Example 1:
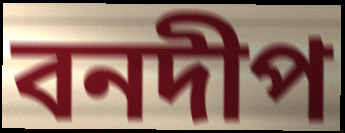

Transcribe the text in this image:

বনদীপ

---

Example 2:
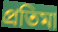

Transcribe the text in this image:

প্ৰতিমা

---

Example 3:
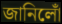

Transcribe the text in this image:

জানিলোঁ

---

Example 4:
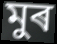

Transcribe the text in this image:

মুৰ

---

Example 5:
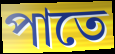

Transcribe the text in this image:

পাতে